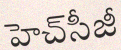
హెచ్‌సీజీ